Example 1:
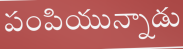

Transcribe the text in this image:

పంపియున్నాడు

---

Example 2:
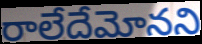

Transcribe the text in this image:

రాలేదేమోనని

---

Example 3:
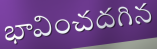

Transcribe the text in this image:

భావించదగిన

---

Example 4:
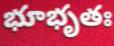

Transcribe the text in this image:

భూభృతః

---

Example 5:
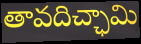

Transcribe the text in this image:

తావదిచ్ఛామి